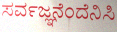
ಸರ್ವಜ್ಞನೆಂದೆನಿಸಿ